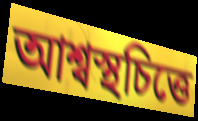
আশ্বস্থচিত্তে